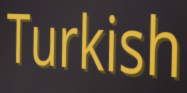
Turkish